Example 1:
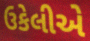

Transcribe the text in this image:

ઉકેલીએ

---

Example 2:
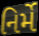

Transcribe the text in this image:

નિર્મે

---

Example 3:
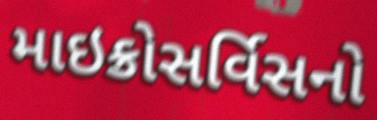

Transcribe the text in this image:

માઇક્રોસર્વિસનો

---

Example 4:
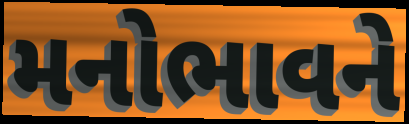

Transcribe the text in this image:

મનોભાવને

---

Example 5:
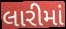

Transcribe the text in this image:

લારીમાં